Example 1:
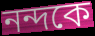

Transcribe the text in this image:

নন্দকে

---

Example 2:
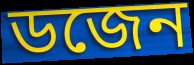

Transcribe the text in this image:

ডজেন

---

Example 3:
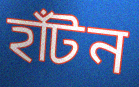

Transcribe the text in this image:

হাঁটন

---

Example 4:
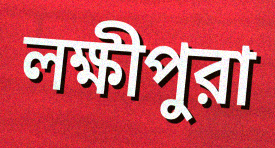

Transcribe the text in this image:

লক্ষীপুরা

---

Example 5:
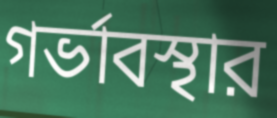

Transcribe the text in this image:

গর্ভাবস্থার